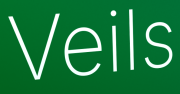
Veils